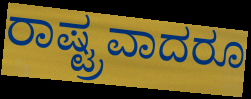
ರಾಷ್ಟ್ರವಾದರೂ